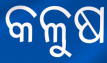
କଳୁଷ